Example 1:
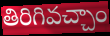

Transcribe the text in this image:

తిరిగివచ్చాం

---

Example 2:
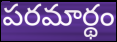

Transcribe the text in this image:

పరమార్థం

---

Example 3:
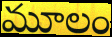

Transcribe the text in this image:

మూలం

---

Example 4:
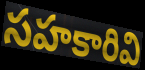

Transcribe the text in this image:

సహకారివి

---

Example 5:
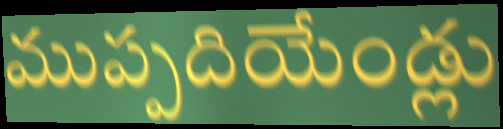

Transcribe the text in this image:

ముప్పదియేండ్లు